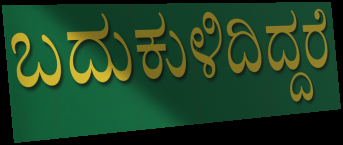
ಬದುಕುಳಿದಿದ್ದರೆ